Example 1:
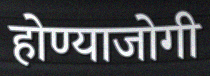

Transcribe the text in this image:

होण्याजोगी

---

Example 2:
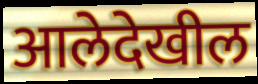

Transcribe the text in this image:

आलेदेखील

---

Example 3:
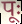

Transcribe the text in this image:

पूः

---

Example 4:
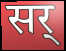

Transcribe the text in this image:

सर्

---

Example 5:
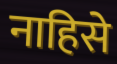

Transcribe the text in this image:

नाहिसे